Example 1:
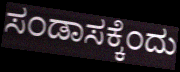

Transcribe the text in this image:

ಸಂಡಾಸಕ್ಕೆಂದು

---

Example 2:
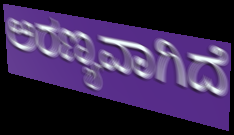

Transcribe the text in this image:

ಅರಣ್ಯವಾಗಿದೆ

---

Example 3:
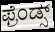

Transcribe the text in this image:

ಫ್ರೆಂಡ್ಸ್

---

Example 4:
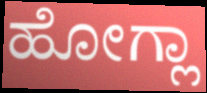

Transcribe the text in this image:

ಹೋಗ್ಲಾ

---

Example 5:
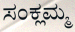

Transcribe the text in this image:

ಸಂಕ್ಲಮ್ಮ